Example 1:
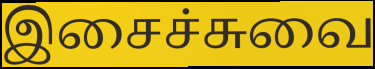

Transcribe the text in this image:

இசைச்சுவை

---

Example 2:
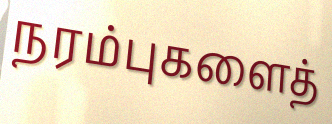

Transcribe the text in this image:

நரம்புகளைத்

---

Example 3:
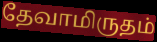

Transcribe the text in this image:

தேவாமிருதம்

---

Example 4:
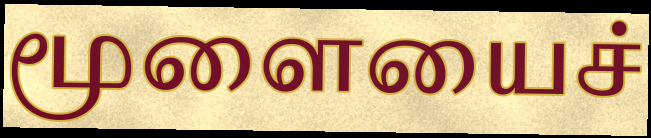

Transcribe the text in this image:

மூளையைச்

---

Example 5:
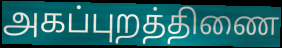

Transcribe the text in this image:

அகப்புறத்திணை